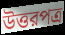
উত্তরপত্র